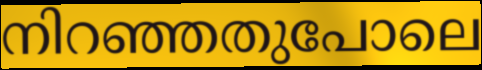
നിറഞ്ഞതുപോലെ